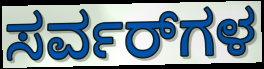
ಸರ್ವರ್‌ಗಳ